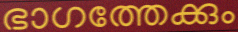
ഭാഗത്തേക്കും